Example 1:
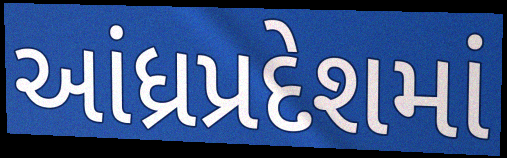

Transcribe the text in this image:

આંધ્રપ્રદેશમાં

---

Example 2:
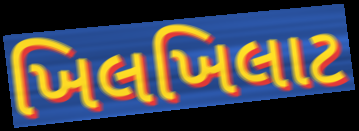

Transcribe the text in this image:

ખિલખિલાટ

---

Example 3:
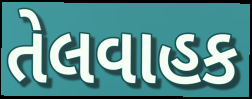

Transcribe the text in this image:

તેલવાહક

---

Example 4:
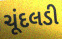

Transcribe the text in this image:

ચૂંદલડી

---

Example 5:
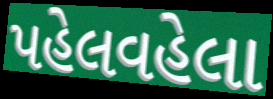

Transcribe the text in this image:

પહેલવહેલા